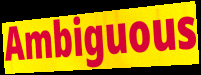
Ambiguous